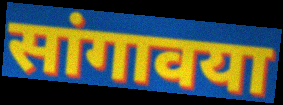
सांगावया